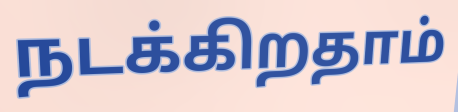
நடக்கிறதாம்